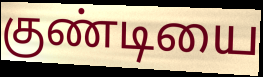
குண்டியை